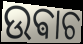
ଉଵାଚ